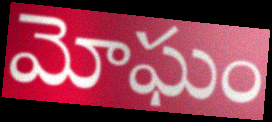
మోఘం